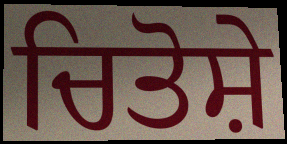
ਚਿਤੋਸ਼ੇ